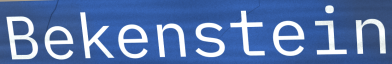
Bekenstein